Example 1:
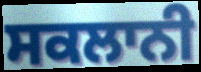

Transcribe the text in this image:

ਸਕਲਾਨੀ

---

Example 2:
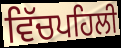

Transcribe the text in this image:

ਵਿੱਚਪਹਿਲੀ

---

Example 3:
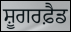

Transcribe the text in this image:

ਸ਼ੂਗਰਫ਼ੈਡ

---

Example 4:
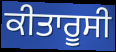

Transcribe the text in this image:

ਕੀਤਾਰੂਸੀ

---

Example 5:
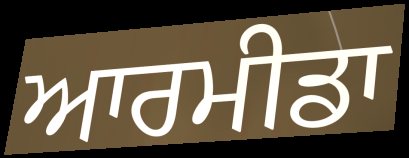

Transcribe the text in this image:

ਆਰਮੀਡਾ